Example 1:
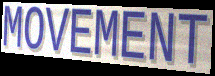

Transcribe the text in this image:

MOVEMENT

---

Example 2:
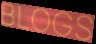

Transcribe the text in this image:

BLOGS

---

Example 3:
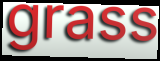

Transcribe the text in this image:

grass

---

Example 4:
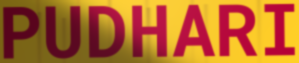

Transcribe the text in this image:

PUDHARI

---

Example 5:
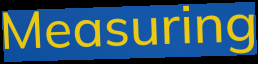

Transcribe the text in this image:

Measuring